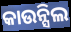
କାଉନ୍ସିଲ